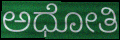
ಅಧೋತಿ